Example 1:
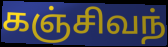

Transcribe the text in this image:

கஞ்சிவந்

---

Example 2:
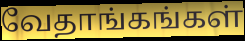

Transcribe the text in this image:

வேதாங்கங்கள்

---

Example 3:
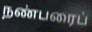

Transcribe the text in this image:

நண்பரைப்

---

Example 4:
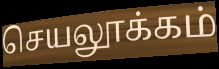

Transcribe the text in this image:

செயலூக்கம்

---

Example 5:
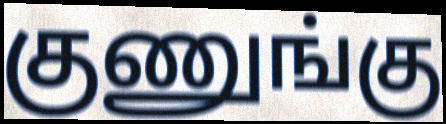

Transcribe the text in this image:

குணுங்கு